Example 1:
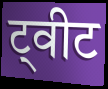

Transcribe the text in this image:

ट्‍वीट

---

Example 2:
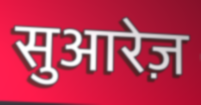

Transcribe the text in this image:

सुआरेज़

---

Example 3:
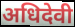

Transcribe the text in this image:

अधिदेवी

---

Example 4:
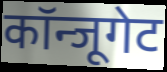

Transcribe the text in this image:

कॉन्जूगेट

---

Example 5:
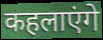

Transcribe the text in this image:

कहलाएंगे